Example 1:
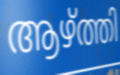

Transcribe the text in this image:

ആഴ്ത്തി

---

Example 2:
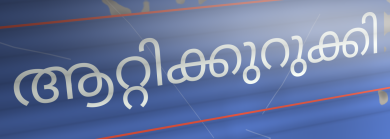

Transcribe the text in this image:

ആറ്റിക്കുറുക്കി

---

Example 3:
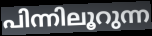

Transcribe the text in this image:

പിന്നിലൂറുന്ന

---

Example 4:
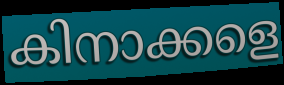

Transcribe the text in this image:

കിനാക്കളെ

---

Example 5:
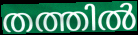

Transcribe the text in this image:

തത്തിൽ